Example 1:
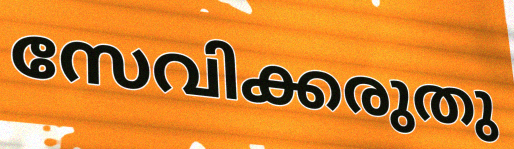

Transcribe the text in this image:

സേവിക്കരുതു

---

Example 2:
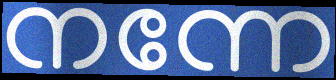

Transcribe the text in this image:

നന്നേ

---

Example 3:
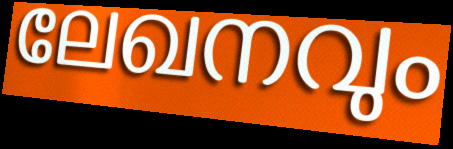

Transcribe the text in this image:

ലേഖനവും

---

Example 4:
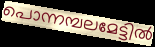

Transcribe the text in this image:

പൊന്നമ്പലമേട്ടിൽ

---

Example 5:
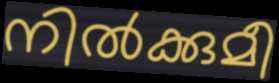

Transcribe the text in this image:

നിൽക്കുമീ